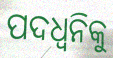
ପଦଧ୍ୱନିକୁ